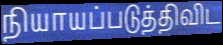
நியாயப்படுத்திவிட